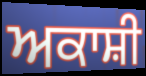
ਅਕਾਸ਼ੀ